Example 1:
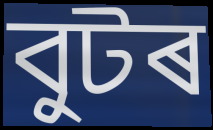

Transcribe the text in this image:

বুটৰ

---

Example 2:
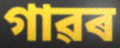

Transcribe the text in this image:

গাৱৰ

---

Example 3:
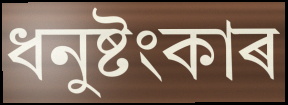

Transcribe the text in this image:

ধনুষ্টংকাৰ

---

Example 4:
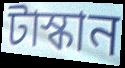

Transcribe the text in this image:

টাস্কান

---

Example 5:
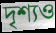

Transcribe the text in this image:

দৃশ্যও